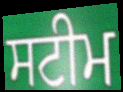
ਸਟੀਮ